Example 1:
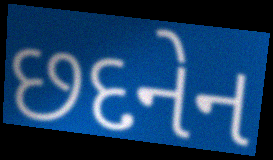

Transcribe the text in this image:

છદનેન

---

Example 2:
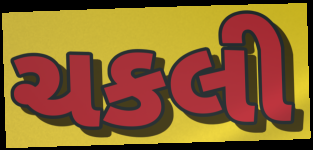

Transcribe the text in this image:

ચકલી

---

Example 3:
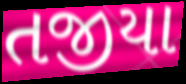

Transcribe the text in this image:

તજીયા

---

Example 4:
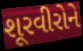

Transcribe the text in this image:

શૂરવીરોને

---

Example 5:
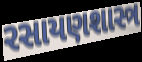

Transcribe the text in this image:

રસાયણશાસ્ત્ર